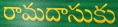
రామదాసుకు